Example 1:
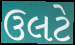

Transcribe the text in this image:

ઉલટે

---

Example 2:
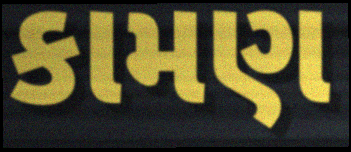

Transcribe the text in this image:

કામણ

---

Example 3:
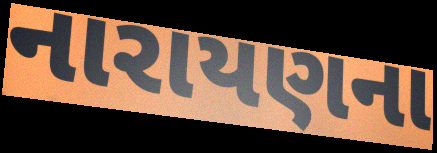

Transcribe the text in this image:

નારાયણના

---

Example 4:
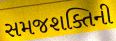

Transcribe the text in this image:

સમજશક્તિની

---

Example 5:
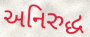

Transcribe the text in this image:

અનિરુદ્ધ